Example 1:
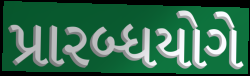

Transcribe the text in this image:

પ્રારબ્ધયોગે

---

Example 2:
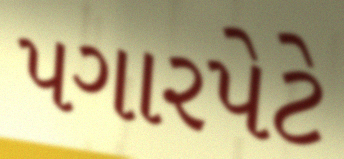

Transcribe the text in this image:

પગારપેટે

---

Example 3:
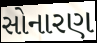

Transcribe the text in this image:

સોનારણ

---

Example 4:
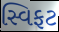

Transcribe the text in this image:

સ્વિફટ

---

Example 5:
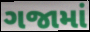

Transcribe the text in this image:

ગજામાં